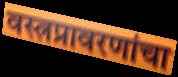
वस्त्रप्रावरणांचा